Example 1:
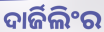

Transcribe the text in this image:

ଦାର୍ଜିଲିଂର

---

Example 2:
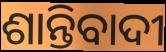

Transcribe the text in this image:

ଶାନ୍ତିବାଦୀ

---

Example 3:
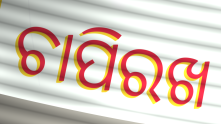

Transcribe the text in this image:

ଚାପିରଖ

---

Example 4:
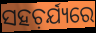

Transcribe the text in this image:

ସହଚ଼ର୍ଯ୍ୟରେ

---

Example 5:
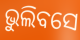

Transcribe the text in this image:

ଭୁଲିବସେ